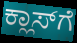
ಕ್ಲಾಸ್‍ಗೆ